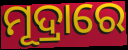
ମୂଦ୍ରାରେ